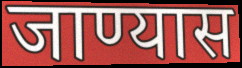
जाण्यास